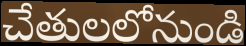
చేతులలోనుండి